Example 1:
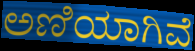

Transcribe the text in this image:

ಅಣಿಯಾಗಿವೆ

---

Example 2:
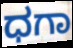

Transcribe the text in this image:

ಧಗಾ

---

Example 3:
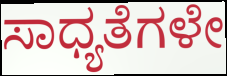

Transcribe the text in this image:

ಸಾಧ್ಯತೆಗಳೇ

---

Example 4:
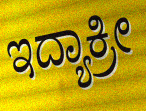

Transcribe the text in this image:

ಇದ್ಯಾಕ್ರೀ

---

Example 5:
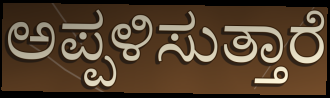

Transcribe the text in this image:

ಅಪ್ಪಳಿಸುತ್ತಾರೆ